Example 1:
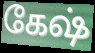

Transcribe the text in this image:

கேஷ்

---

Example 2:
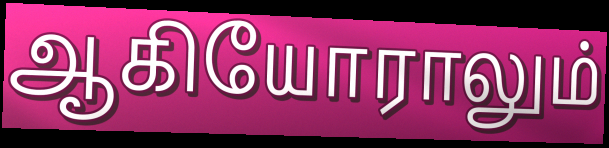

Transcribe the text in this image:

ஆகியோராலும்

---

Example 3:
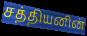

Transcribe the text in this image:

சத்தியனின்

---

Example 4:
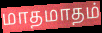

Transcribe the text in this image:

மாதமாதம்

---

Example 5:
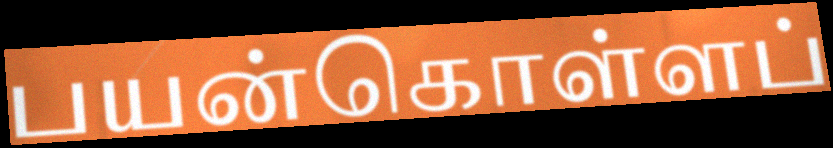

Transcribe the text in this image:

பயன்கொள்ளப்